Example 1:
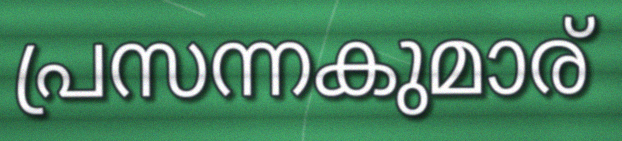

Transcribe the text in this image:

പ്രസന്നകുമാര്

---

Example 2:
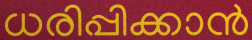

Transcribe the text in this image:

ധരിപ്പിക്കാൻ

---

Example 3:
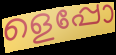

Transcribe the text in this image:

ളെപ്പോ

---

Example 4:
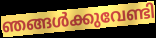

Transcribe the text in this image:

ഞങ്ങൾക്കുവേണ്ടി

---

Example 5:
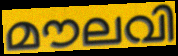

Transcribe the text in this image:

മൗലവി